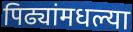
पिढ्यांमधल्या